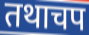
तथाचप